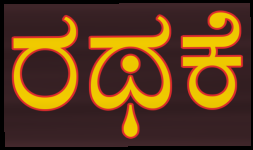
ರಥಕೆ